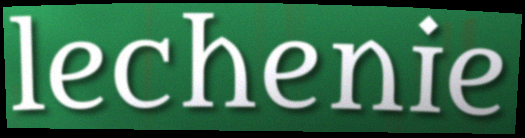
lechenie